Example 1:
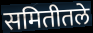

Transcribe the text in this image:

समितीतले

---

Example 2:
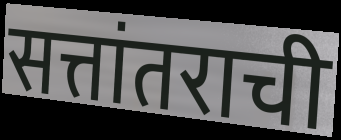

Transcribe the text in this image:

सत्तांतराची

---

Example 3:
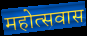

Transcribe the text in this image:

महोत्सवास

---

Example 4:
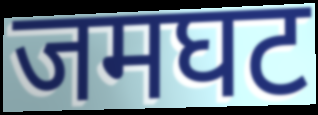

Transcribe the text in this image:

जमघट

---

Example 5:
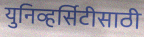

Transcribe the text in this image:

युनिव्हर्सिटीसाठी